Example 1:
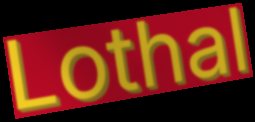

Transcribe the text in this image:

Lothal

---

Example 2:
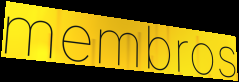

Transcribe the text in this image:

membros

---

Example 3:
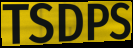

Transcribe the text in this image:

TSDPS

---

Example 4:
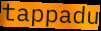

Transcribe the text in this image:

tappadu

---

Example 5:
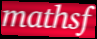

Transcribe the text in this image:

mathsf